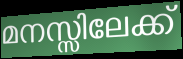
മനസ്സിലേക്ക്